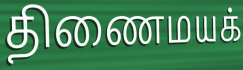
திணைமயக்